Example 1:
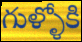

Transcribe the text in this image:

గుళ్ళోకి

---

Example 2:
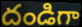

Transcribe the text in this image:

దండిగా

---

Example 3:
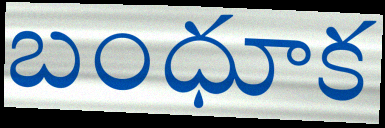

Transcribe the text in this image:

బంధూక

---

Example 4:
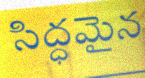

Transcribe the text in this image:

సిద్ధమైన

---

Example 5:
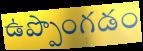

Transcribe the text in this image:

ఉప్పొంగడం